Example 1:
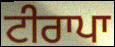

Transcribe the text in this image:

ਟੀਰਾਪਾ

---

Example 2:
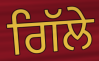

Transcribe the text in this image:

ਗਿੱਲੇ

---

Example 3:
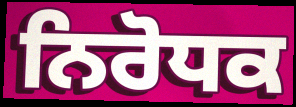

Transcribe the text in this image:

ਨਿਰੋਧਕ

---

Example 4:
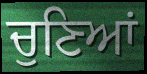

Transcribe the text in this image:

ਚੁਣਿਆਂ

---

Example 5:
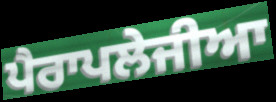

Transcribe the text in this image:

ਪੈਰਾਪਲੇਜੀਆ